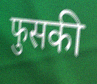
फुसकी